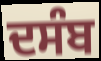
ਦਸੰਬ